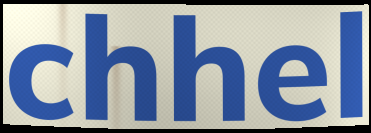
chhel